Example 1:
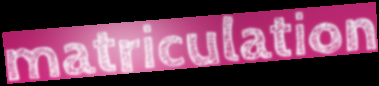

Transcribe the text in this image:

matriculation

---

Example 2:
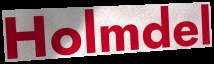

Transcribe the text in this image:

Holmdel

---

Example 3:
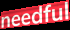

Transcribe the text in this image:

needful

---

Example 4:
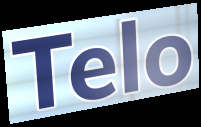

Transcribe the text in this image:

Telo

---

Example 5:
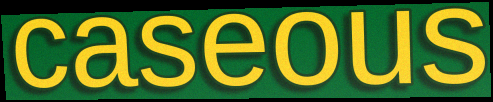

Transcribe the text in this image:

caseous